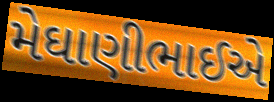
મેઘાણીભાઈએ